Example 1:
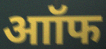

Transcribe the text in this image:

आॉफ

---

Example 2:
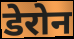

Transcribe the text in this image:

डेरोन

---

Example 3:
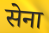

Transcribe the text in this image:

सेना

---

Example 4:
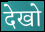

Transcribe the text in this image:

देखो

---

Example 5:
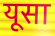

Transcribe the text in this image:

यूसा